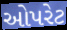
ઓપરેટ